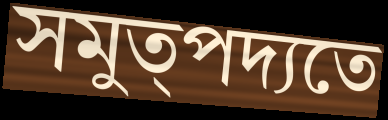
সমুত্পদ্যতে